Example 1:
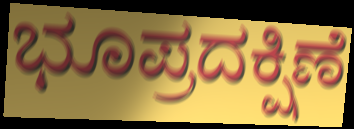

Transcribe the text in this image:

ಭೂಪ್ರದಕ್ಷಿಣೆ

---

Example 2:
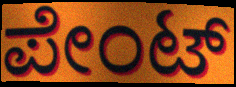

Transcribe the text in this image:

ಪೇಂಟ್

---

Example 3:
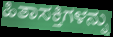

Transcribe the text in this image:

ಹಿತಾಸಕ್ತಿಗಳನ್ನು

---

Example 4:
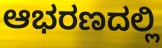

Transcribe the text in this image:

ಆಭರಣದಲ್ಲಿ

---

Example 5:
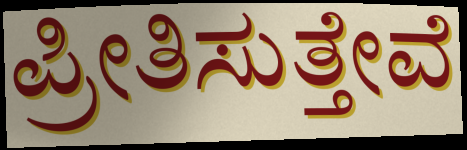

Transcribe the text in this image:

ಪ್ರೀತಿಸುತ್ತೇವೆ